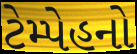
ટેમ્પેહનો